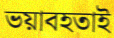
ভয়াবহতাই